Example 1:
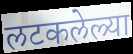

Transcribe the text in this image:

लटकलेल्या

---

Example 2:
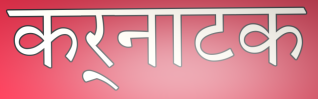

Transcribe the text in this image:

कर्नाटक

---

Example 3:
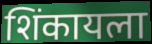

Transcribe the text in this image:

शिंकायला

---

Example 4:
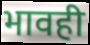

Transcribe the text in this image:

भावही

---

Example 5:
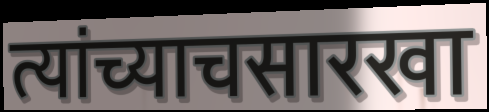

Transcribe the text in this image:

त्यांच्याचसारखा